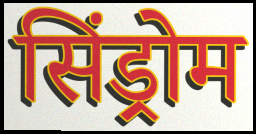
सिंड्रोम